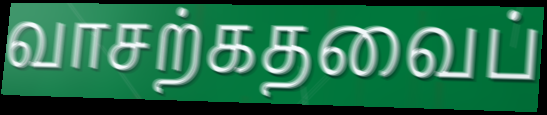
வாசற்கதவைப்